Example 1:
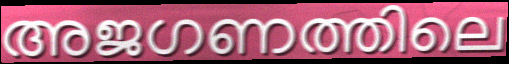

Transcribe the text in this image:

അജഗണത്തിലെ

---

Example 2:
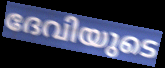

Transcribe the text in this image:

ദേവിയുടെ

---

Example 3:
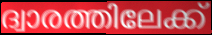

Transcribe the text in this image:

ദ്വാരത്തിലേക്ക്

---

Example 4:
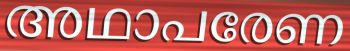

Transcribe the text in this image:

അഥാപരേണ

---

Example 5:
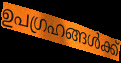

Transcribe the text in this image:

ഉപഗ്രഹങ്ങൾക്ക്